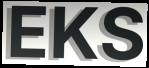
EKS